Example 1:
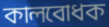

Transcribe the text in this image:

কালবোধক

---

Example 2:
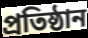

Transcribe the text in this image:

প্ৰতিষ্ঠান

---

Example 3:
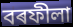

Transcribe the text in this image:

বৰফীলা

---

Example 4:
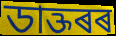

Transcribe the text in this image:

ডাক্তৰৰ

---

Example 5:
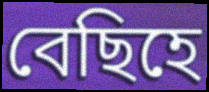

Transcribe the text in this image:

বেছিহে